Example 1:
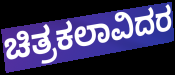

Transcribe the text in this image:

ಚಿತ್ರಕಲಾವಿದರ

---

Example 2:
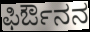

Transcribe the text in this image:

ಫಿರ್ಔನನ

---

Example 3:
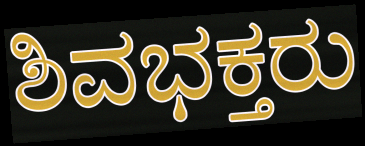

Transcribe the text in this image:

ಶಿವಭಕ್ತರು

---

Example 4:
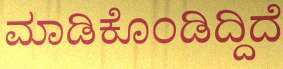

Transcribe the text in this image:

ಮಾಡಿಕೊಂಡಿದ್ದಿದೆ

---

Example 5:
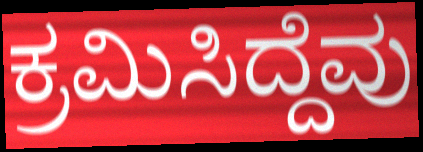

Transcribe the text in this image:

ಕ್ರಮಿಸಿದ್ದೆವು